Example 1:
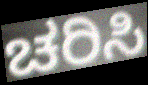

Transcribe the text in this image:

ಚರಿಸಿ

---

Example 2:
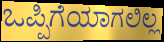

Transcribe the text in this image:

ಒಪ್ಪಿಗೆಯಾಗಲಿಲ್ಲ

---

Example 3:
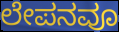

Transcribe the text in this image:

ಲೇಪನವೂ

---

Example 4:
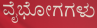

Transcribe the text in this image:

ವೈಭೋಗಗಳು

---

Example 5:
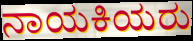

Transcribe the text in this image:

ನಾಯಕಿಯರು